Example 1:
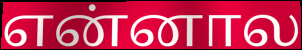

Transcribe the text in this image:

என்னால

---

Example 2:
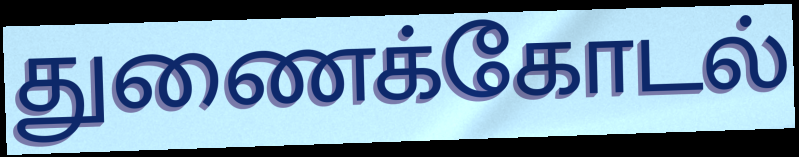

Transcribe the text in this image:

துணைக்கோடல்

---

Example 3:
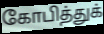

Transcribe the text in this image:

கோபித்துக்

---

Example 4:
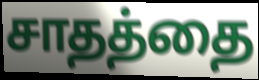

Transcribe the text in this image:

சாதத்தை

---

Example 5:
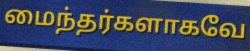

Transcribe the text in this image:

மைந்தர்களாகவே